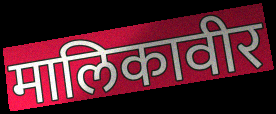
मालिकावीर